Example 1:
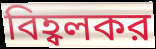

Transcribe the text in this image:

বিহ্বলকর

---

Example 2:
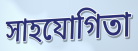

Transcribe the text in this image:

সাহযোগিতা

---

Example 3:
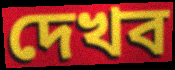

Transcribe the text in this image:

দেখব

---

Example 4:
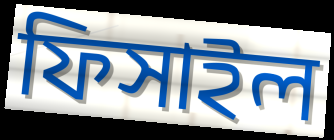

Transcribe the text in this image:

ফিসাইল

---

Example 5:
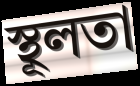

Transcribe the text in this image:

স্থূলতা